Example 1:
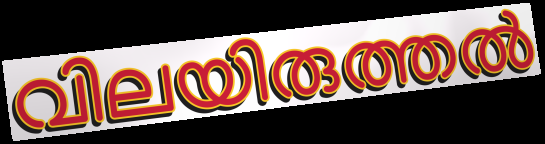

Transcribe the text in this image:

വിലയിരുത്തൽ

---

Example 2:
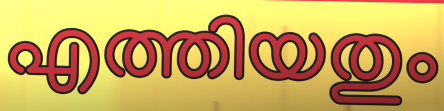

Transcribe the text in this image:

എത്തിയതും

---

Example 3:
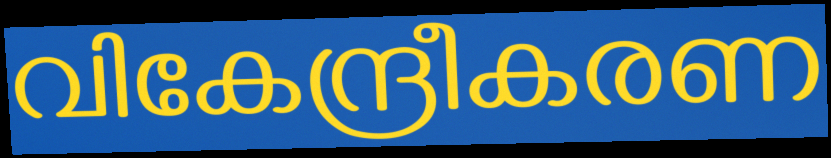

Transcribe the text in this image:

വികേന്ദ്രീകരണ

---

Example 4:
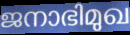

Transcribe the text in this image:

ജനാഭിമുഖ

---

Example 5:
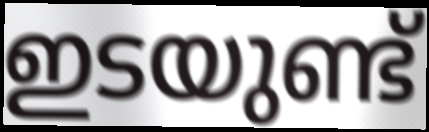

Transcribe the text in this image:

ഇടയുണ്ട്